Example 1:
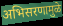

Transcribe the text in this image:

अभिसरणामुळे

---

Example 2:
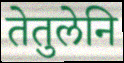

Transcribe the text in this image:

तेतुलेनि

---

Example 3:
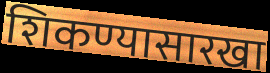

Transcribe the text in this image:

शिकण्यासारखा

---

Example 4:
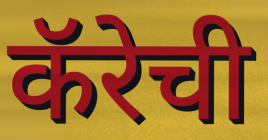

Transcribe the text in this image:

कॅरेची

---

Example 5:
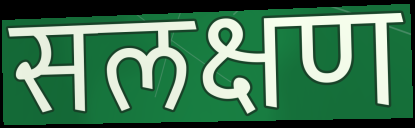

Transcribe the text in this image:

सलक्षण